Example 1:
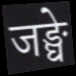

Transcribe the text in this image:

जङ्घे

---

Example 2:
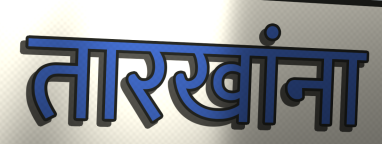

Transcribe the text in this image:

तारखांना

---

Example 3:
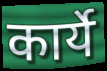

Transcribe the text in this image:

कार्ये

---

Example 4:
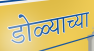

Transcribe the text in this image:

डोळ्याच्या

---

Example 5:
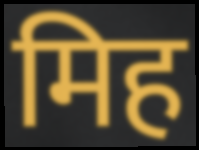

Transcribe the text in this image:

मिह